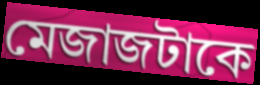
মেজাজটাকে